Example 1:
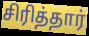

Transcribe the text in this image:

சிரித்தார்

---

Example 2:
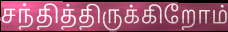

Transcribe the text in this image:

சந்தித்திருக்கிறோம்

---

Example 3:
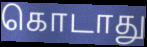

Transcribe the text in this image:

கொடாது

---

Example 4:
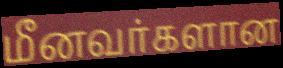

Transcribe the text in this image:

மீனவர்களான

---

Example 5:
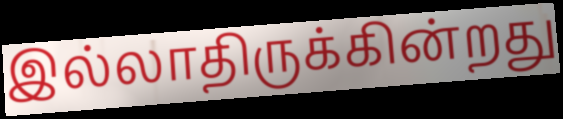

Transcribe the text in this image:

இல்லாதிருக்கின்றது